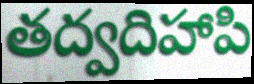
తద్వదిహాపి